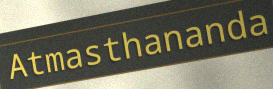
Atmasthananda